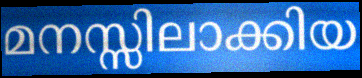
മനസ്സിലാക്കിയ